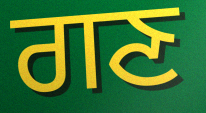
ਗਣ